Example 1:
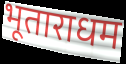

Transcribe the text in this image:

भूताराधम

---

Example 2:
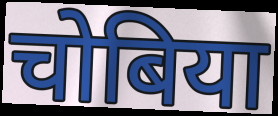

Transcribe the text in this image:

चोबिया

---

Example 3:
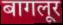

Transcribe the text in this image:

बागलूर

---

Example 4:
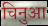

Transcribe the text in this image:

चिनुआ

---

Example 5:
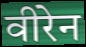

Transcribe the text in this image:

वीरेन